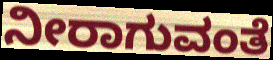
ನೀರಾಗುವಂತೆ